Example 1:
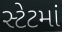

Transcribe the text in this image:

સ્ટેટમાં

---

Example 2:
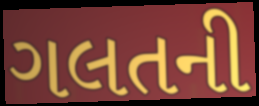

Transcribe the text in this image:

ગલતની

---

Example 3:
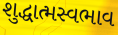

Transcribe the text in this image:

શુદ્ધાત્મસ્વભાવ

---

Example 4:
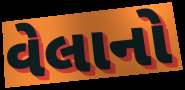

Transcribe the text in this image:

વેલાનો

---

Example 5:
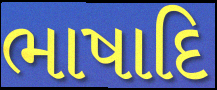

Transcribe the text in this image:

ભાષાદિ